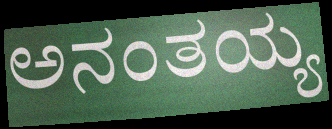
ಅನಂತಯ್ಯ